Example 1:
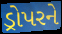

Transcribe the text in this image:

ડ્રોપરને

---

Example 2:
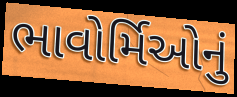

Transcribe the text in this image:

ભાવોર્મિઓનું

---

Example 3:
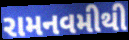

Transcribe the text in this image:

રામનવમીથી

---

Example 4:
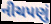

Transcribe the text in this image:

નીચપણું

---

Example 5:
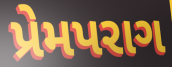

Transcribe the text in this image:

પ્રેમપરાગ